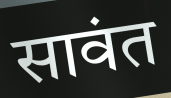
सावंत